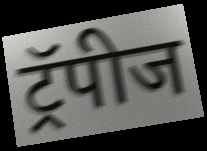
ट्रॅपीज